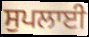
ਸੁਪਲਾਈ